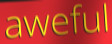
aweful